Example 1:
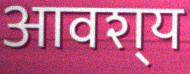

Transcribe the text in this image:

आवश्य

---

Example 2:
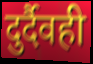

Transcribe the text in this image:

दुर्दैवही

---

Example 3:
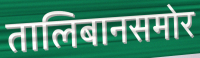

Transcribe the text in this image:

तालिबानसमोर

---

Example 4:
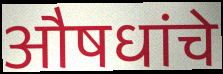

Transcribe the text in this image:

औषधांचे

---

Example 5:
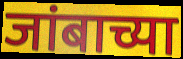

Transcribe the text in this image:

जांबाच्या